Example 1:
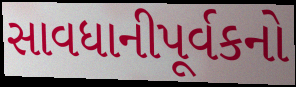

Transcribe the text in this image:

સાવધાનીપૂર્વકનો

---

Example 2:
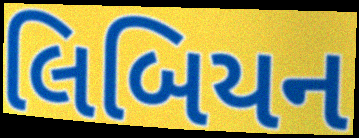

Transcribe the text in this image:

લિબિયન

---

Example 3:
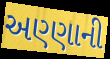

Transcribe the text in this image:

અણ્ણાની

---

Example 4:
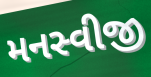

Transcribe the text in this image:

મનસ્વીજી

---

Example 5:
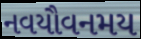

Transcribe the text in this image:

નવયૌવનમય